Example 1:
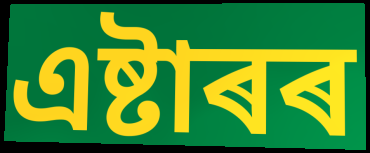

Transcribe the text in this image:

এষ্টাৰৰ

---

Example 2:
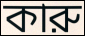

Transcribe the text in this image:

কাৰু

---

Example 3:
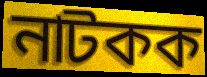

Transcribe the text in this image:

নাটকক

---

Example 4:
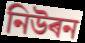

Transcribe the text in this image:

নিউৰন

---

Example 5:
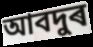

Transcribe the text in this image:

আবদুৰ